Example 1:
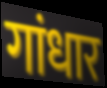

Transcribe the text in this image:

गांधार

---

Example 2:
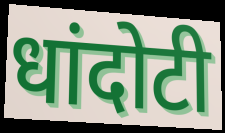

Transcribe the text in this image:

धांदोटी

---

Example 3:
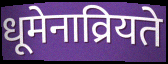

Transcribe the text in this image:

धूमेनाव्रियते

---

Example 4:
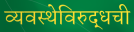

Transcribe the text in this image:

व्यवस्थेविरुद्धची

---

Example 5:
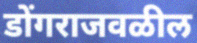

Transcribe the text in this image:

डोंगराजवळील